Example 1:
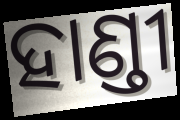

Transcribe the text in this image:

ହାଣ୍ଡୀ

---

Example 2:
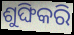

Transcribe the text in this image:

ଶୁଙ୍ଘିକରି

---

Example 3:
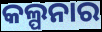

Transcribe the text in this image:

କଲ୍ପନାର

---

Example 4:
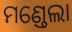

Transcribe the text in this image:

ମଣ୍ଡେଲା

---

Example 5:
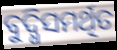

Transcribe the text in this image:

ବୁଦ୍ଧିସମର୍ଥିତ